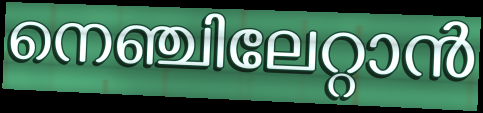
നെഞ്ചിലേറ്റാൻ